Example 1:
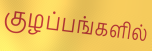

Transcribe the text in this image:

குழப்பங்களில்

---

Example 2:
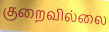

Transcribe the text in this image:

குறைவில்லை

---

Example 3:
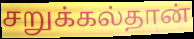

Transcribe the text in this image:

சறுக்கல்தான்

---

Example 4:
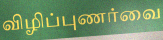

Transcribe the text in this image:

விழிப்புணர்வை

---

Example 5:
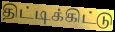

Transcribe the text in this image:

திட்டிக்கிட்டு